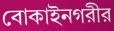
বোকাইনগরীর